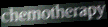
chemotherapy